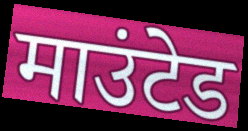
माउंटेड